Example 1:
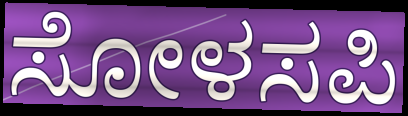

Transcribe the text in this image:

ಸೋಳಸಪಿ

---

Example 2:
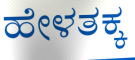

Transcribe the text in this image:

ಹೇಳತಕ್ಕ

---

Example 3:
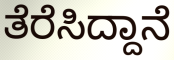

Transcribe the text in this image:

ತೆರೆಸಿದ್ದಾನೆ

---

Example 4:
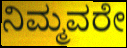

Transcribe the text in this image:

ನಿಮ್ಮವರೇ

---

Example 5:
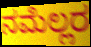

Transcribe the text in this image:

ನಮೆಲ್ಲರ